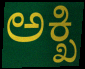
ಅಕ್ಖಿ